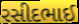
રસીદભાઈ